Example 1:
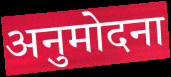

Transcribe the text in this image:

अनुमोदना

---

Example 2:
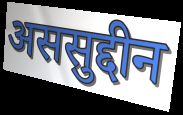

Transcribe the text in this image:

अससुद्दीन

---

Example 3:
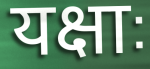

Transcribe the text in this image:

यक्षाः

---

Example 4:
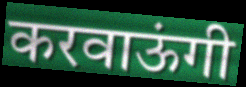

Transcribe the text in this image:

करवाऊंगी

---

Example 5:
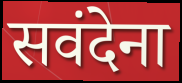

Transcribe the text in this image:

सवंदेना